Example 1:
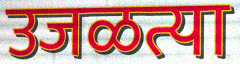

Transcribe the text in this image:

उजळत्या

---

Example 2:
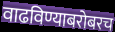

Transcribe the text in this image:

वाढविण्याबरोबरच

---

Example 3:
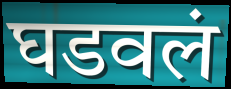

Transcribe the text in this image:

घडवलं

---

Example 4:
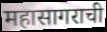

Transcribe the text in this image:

महासागराची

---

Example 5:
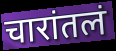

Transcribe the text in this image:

चारांतलं